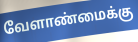
வேளாண்மைக்கு